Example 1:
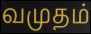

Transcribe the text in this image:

வமுதம்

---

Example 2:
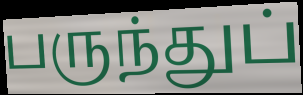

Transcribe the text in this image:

பருந்துப்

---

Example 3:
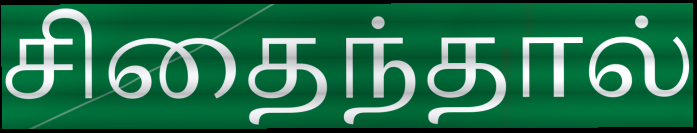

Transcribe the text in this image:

சிதைந்தால்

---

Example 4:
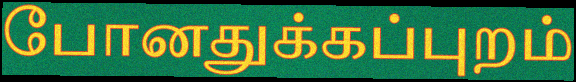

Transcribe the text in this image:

போனதுக்கப்புறம்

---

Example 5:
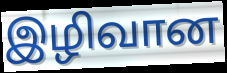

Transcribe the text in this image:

இழிவான